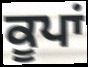
ਕੂਪਾਂ